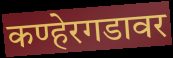
कण्हेरगडावर